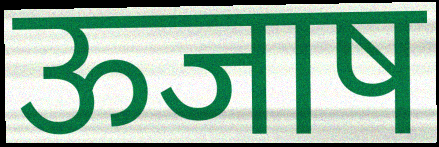
ऊजाष